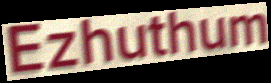
Ezhuthum